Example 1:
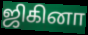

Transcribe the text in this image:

ஜிகினா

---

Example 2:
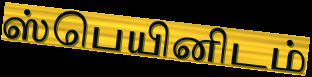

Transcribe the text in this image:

ஸ்பெயினிடம்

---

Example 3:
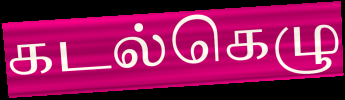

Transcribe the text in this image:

கடல்கெழு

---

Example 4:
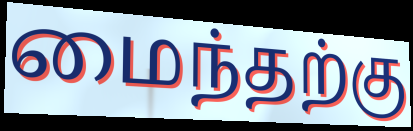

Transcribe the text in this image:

மைந்தற்கு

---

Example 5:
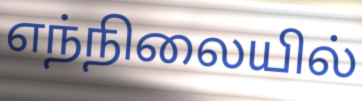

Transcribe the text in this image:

எந்நிலையில்